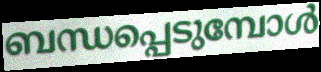
ബന്ധപ്പെടുമ്പോൾ